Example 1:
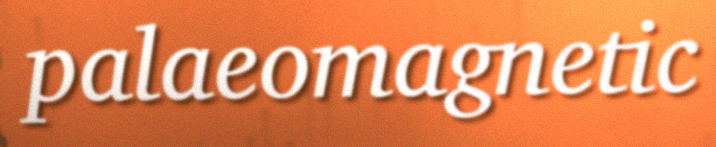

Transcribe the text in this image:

palaeomagnetic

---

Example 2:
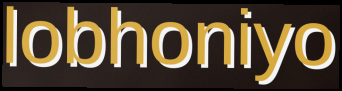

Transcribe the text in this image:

lobhoniyo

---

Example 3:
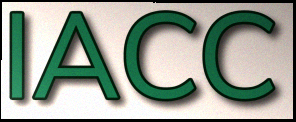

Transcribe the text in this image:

IACC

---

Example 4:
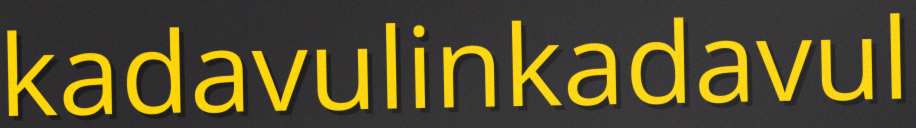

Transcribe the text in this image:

kadavulinkadavul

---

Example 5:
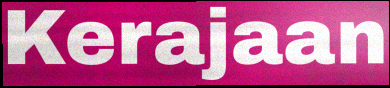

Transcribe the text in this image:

Kerajaan